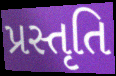
પ્રસ્તૃતિ